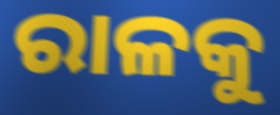
ରାଳକୁ